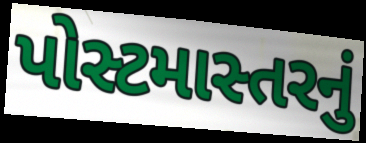
પોસ્ટમાસ્તરનું